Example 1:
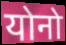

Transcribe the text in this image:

योनो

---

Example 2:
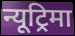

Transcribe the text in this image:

न्यूट्रिमा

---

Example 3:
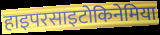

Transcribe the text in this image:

हाइपरसाइटोकिनेमिया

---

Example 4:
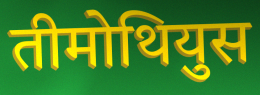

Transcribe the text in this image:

तीमोथियुस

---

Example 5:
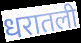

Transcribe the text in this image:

धरातली